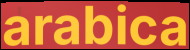
arabica